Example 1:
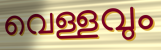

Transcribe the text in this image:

വെള്ളവും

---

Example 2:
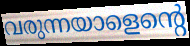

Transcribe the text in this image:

വരുന്നയാളെന്റെ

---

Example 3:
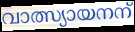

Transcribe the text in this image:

വാത്സ്യായനന്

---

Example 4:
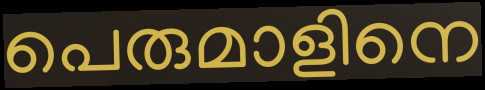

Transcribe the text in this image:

പെരുമാളിനെ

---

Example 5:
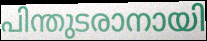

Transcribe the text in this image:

പിന്തുടരാനായി